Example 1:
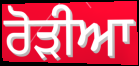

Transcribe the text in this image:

ਰੋੜੀਆ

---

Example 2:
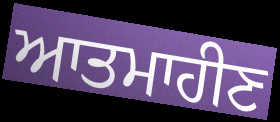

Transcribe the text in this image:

ਆਤਮਾਹੀਣ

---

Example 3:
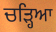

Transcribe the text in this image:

ਚਡ਼੍ਹਿਆ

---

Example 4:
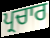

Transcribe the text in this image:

ਪ੍ਰਚਾਰ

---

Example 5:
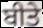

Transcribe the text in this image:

ਬੀਤੇ